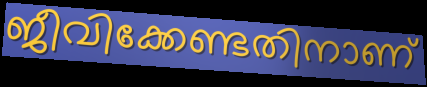
ജീവിക്കേണ്ടതിനാണ്